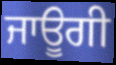
ਜਾਊਗੀ